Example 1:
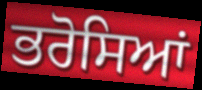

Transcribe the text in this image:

ਭਰੋਸਿਆਂ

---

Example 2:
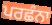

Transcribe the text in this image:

ਪਰਛੰਨਾ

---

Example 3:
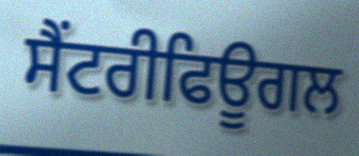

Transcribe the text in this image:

ਸੈਂਟਰੀਫਿਊਗਲ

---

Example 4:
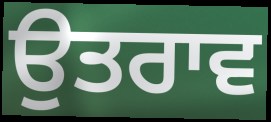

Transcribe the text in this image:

ਉਤਰਾਵ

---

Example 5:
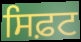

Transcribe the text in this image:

ਸਿਫ਼ਟ